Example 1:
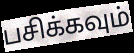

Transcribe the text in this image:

பசிக்கவும்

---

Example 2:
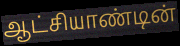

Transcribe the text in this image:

ஆட்சியாண்டின்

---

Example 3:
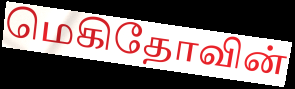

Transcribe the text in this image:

மெகிதோவின்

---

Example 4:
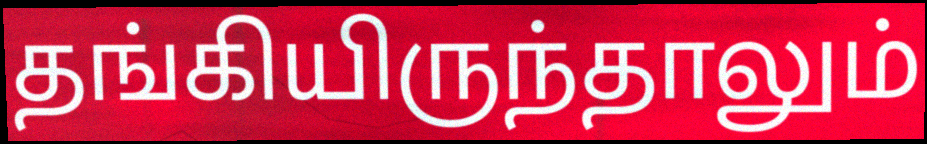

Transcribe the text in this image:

தங்கியிருந்தாலும்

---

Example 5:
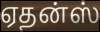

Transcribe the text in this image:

ஏதன்ஸ்